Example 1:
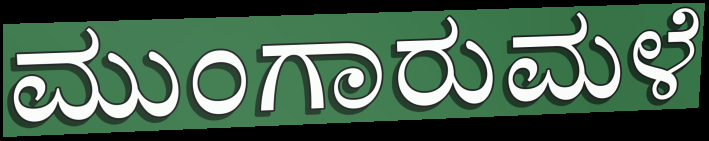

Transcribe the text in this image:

ಮುಂಗಾರುಮಳೆ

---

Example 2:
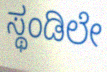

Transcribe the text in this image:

ಸ್ಥಂಡಿಲೇ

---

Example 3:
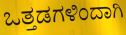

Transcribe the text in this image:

ಒತ್ತಡಗಳಿಂದಾಗಿ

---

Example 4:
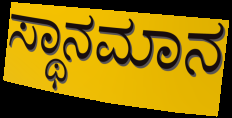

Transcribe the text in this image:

ಸ್ಥಾನಮಾನ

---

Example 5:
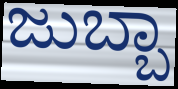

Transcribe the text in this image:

ಜುಬ್ಬಾ